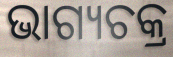
ଭାଗ୍ୟଚକ୍ର